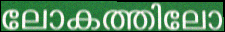
ലോകത്തിലോ